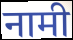
नामी